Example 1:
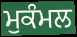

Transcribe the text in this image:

ਮੁਕੰਮਲ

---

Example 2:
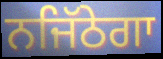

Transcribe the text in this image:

ਨਜਿੱਠੇਗਾ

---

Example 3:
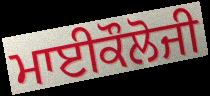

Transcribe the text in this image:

ਮਾਈਕੌਲੋਜੀ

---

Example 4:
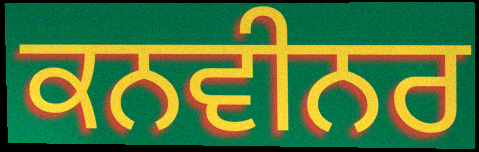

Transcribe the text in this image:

ਕਨਵੀਨਰ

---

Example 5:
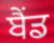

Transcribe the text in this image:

ਬੈੰਡ